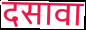
दसावा